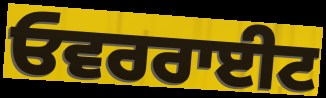
ਓਵਰਰਾਈਟ